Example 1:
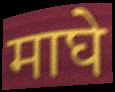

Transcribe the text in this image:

माघे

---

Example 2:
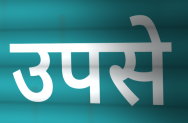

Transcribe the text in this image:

उपसे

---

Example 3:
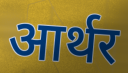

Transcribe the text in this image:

आर्थर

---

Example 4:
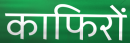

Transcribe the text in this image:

काफिरों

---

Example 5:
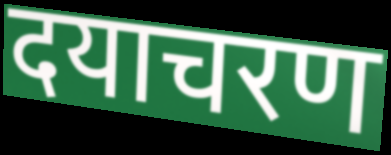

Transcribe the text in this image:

दयाचरण